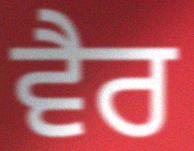
ਵੈਰ